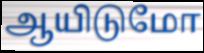
ஆயிடுமோ